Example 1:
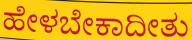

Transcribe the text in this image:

ಹೇಳಬೇಕಾದೀತು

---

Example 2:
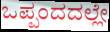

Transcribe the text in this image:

ಒಪ್ಪಂದದಲ್ಲೇ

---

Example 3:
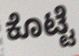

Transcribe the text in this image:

ಕೊಟ್ಟೆ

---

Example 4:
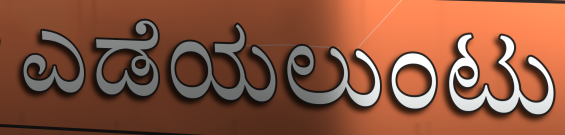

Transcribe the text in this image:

ಎಡೆಯಲುಂಟು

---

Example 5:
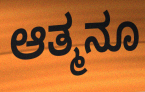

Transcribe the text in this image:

ಆತ್ಮನೂ